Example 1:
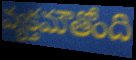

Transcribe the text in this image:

వ్యక్తమౌతోంది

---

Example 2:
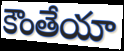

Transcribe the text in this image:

కౌంతేయా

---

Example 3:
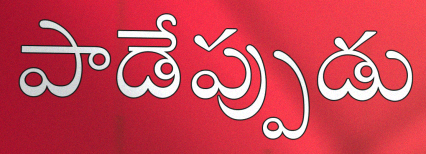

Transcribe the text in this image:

పాడేప్పుడు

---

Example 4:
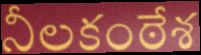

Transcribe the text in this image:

నీలకంఠేశ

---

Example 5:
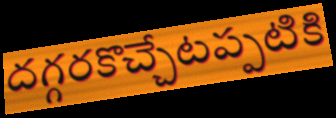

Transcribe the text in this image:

దగ్గరకొచ్చేటప్పటికి